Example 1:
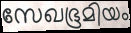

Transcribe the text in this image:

സേഖഭൂമിയം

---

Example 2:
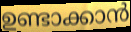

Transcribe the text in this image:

ഉണ്ടാക്കാൻ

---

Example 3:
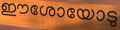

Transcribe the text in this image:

ഈശോയോടു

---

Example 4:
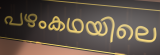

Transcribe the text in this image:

പഴംകഥയിലെ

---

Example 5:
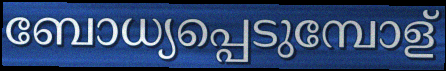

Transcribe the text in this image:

ബോധ്യപ്പെടുമ്പോള്